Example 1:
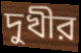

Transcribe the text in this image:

দুখীর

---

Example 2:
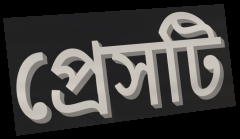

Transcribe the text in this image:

প্রেসটি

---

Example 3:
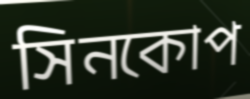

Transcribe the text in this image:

সিনকোপ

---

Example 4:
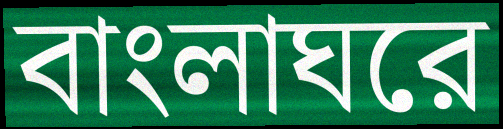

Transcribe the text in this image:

বাংলাঘরে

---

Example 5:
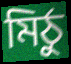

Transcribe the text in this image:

মিঠু